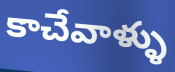
కాచేవాళ్ళు